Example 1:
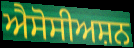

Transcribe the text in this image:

ਐਸੋਸੀਅਸ਼ਨ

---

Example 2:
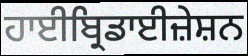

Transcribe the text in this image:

ਹਾਈਬ੍ਰਿਡਾਈਜ਼ੇਸ਼ਨ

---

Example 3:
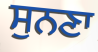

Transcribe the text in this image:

ਸੁਨਣਾ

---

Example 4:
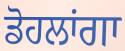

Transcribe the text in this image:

ਡੋਹਲਾਂਗਾ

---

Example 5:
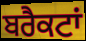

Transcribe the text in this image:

ਬਰੈਕਟਾਂ